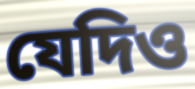
যেদিও